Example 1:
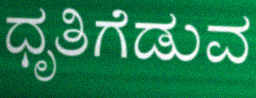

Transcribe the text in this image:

ಧೃತಿಗೆಡುವ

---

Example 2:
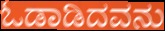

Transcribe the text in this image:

ಓಡಾಡಿದವನು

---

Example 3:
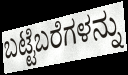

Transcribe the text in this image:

ಬಟ್ಟೆಬರೆಗಳನ್ನು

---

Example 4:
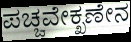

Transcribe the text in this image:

ಪಚ್ಚವೇಕ್ಖಣೇನ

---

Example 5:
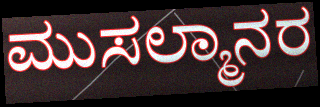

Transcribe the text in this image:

ಮುಸಲ್ಮಾನರ